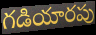
గడియారపు